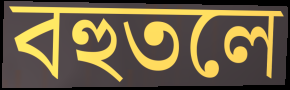
বহুতলে